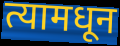
त्यामधून